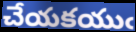
చేయకయుఁ